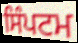
ਸਿੰਪਟਮ